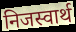
निजस्वार्थ